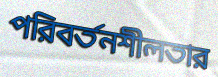
পরিবর্তনশীলতার